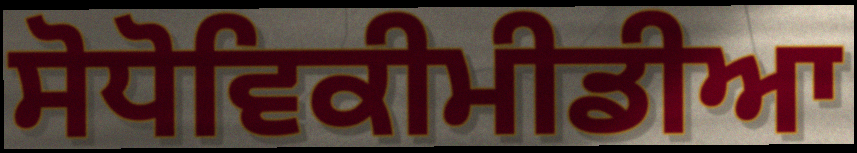
ਸੋਧੋਵਿਕੀਮੀਡੀਆ